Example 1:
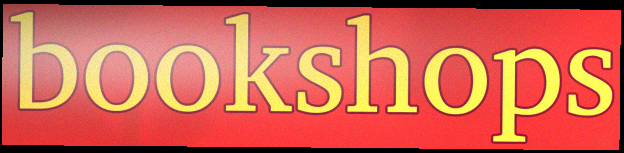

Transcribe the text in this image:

bookshops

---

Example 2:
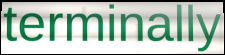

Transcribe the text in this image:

terminally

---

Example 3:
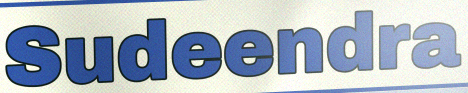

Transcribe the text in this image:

Sudeendra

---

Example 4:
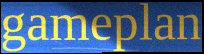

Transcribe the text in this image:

gameplan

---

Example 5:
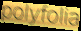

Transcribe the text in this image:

polyfolia